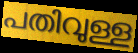
പതിവുള്ള